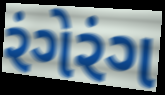
રંગેરંગ